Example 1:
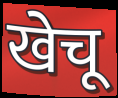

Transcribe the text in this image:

खेचू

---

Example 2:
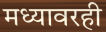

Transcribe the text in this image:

मध्यावरही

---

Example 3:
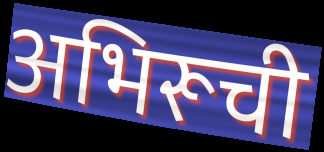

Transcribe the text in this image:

अभिरूची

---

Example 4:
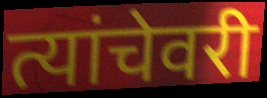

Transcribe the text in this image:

त्यांचेवरी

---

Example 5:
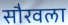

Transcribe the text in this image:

सौरवला